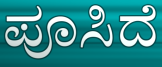
ಪೂಸಿದೆ